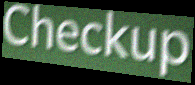
Checkup